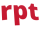
rpt